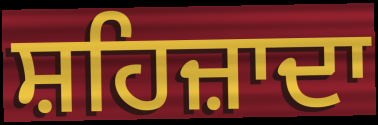
ਸ਼ਹਿਜ਼ਾਦਾ